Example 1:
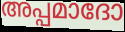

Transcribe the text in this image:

അപ്പമാദോ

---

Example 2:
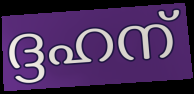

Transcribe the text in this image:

ദ്ദഹന്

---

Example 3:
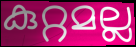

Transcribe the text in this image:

കുറ്റമല്ല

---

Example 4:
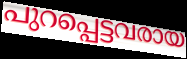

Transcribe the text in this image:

പുറപ്പെട്ടവരായ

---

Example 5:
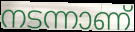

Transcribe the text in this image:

നടന്നാണ്